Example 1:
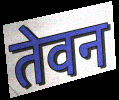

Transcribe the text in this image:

तेवन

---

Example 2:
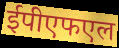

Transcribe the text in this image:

ईपीएफएल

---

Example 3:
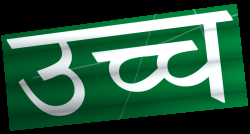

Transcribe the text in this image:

उच्‍च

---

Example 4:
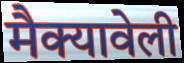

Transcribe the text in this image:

मैक्यावेली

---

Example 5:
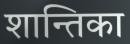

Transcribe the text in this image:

शान्तिका